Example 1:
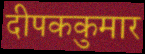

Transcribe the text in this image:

दीपककुमार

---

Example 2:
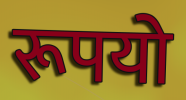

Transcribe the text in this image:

रूपयो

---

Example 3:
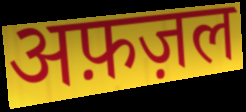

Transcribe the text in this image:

अफ़ज़ल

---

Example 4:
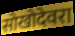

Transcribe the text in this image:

सोखोदेवरा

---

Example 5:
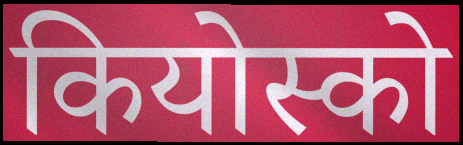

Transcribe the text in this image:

कियोस्को